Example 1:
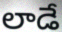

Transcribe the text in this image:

లాడే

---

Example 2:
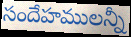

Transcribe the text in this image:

సందేహములన్నీ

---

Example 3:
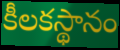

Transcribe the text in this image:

కీలకస్థానం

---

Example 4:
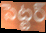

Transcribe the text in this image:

సెట్టర్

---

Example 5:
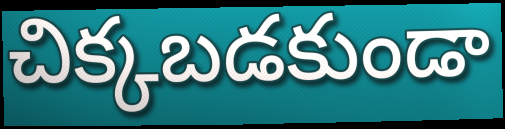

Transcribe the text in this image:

చిక్కబడకుండా